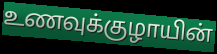
உணவுக்குழாயின்